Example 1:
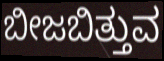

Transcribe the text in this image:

ಬೀಜಬಿತ್ತುವ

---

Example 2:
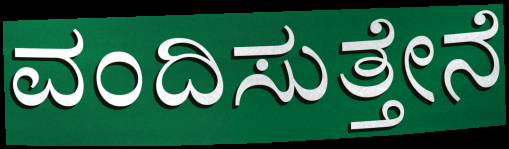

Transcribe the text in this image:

ವಂದಿಸುತ್ತೇನೆ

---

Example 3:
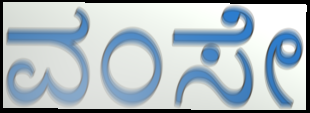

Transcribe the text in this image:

ವಂಸೇ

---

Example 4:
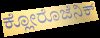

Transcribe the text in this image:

ಕ್ಲೋರೊಜೆನಿಕ್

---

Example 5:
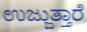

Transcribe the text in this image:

ಉಜ್ಜುತ್ತಾರೆ